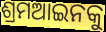
ଶ୍ରମଆଇନକୁ